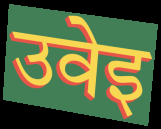
उवेइ